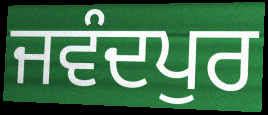
ਜਵੰਦਪੁਰ